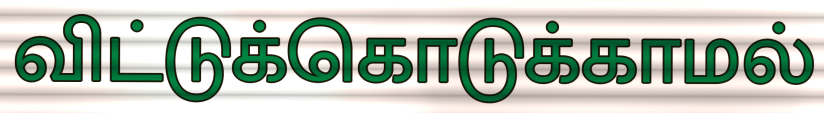
விட்டுக்கொடுக்காமல்